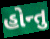
હોન્તુ